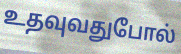
உதவுவதுபோல்